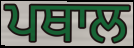
ਪਥਾਲ